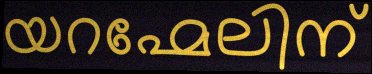
യറഹ്മേലിന്